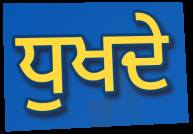
ਧੁਖਦੇ